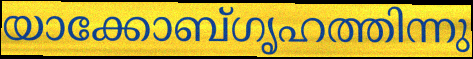
യാക്കോബ്ഗൃഹത്തിന്നു